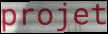
projet